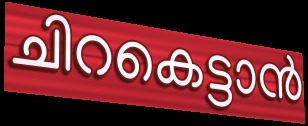
ചിറകെട്ടാൻ